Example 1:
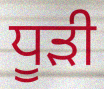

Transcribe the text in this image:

ਧੂੜੀ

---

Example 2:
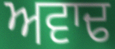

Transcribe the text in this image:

ਅਵਾਢ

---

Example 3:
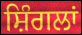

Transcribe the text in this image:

ਸ਼ਿੰਗਲਾਂ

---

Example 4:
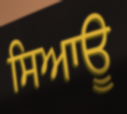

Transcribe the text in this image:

ਸਿਆਊ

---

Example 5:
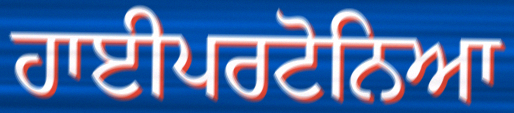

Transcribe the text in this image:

ਹਾਈਪਰਟੋਨਿਆ